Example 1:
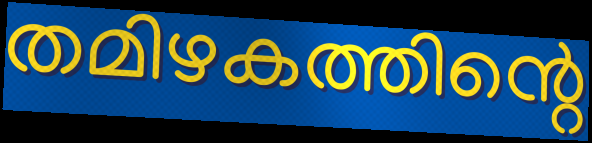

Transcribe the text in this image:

തമിഴകത്തിന്റെ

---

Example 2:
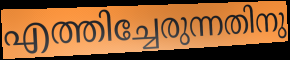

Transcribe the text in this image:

എത്തിച്ചേരുന്നതിനു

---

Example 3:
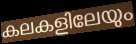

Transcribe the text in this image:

കലകളിലേയും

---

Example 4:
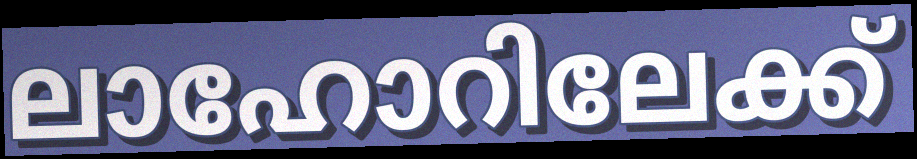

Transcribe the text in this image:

ലാഹോറിലേക്ക്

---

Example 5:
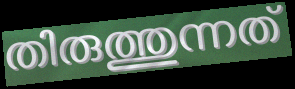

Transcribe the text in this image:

തിരുത്തുന്നത്